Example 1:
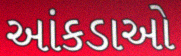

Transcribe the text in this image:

આંકડાઓ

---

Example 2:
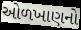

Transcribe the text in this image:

ઓળખાણનો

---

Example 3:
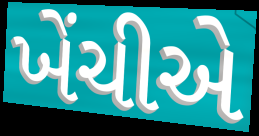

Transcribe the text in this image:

ખેંચીએ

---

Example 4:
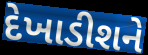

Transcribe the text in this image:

દેખાડીશને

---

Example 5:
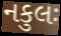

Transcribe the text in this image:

નકુલઃ